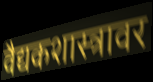
वैद्यकशास्त्रावर